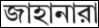
জাহানারা